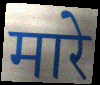
मारे